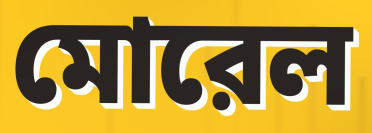
মোরেল